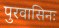
पुरवासिनः